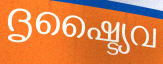
ദൃഷ്ട്യൈവ